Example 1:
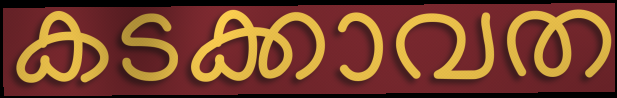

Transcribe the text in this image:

കടക്കാവത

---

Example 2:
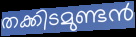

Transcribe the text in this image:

തക്കിടമുണ്ടൻ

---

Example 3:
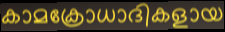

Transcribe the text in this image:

കാമക്രോധാദികളായ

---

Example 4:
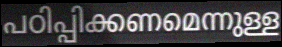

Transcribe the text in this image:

പഠിപ്പിക്കണമെന്നുള്ള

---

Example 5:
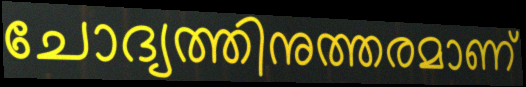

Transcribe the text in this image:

ചോദ്യത്തിനുത്തരമാണ്